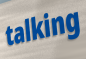
talking